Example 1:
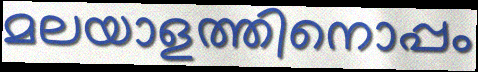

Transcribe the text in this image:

മലയാളത്തിനൊപ്പം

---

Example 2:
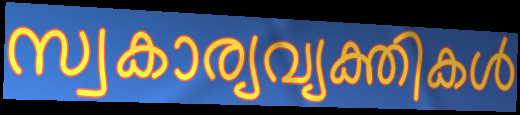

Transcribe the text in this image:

സ്വകാര്യവ്യക്തികൾ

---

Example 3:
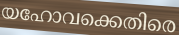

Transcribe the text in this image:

യഹോവക്കെതിരെ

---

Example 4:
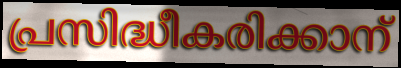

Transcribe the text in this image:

പ്രസിദ്ധീകരിക്കാന്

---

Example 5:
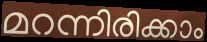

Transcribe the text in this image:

മറന്നിരിക്കാം